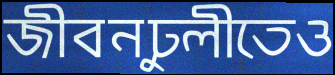
জীবনঢুলীতেও